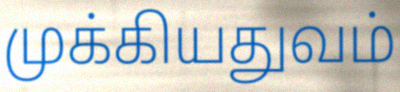
முக்கியதுவம்